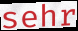
sehr